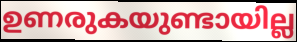
ഉണരുകയുണ്ടായില്ല